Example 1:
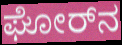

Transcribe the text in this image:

ಘೋರ್‌ನ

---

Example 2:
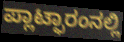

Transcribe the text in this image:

ಪ್ಲಾಟ್ಫಾರಂನಲ್ಲಿ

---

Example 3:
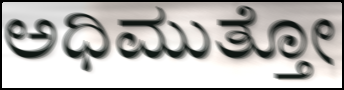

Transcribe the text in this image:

ಅಧಿಮುತ್ತೋ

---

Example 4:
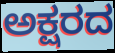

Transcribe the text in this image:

ಅಕ್ಷರದ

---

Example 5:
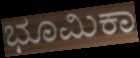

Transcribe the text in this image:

ಭೂಮಿಕಾ